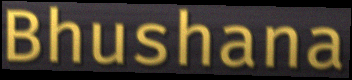
Bhushana